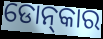
ଡୋନ୍‍କାର